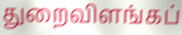
துறைவிளங்கப்